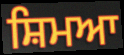
ਸ਼ਿਮਆ